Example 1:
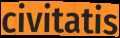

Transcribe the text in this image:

civitatis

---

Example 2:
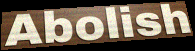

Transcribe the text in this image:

Abolish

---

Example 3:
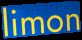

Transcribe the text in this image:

limon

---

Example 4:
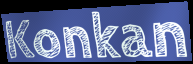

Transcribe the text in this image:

Konkan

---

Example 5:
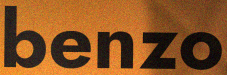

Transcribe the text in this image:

benzo